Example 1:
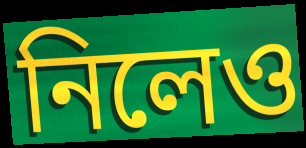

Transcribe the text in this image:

নিলেও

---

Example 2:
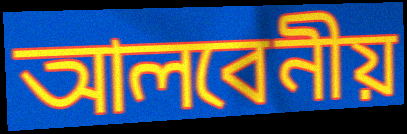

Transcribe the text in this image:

আলবেনীয়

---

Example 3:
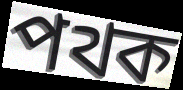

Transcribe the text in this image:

পথক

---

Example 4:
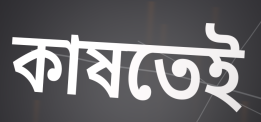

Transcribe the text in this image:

কাষতেই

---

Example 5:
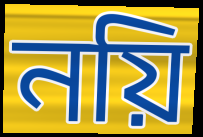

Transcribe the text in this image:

নয়ি